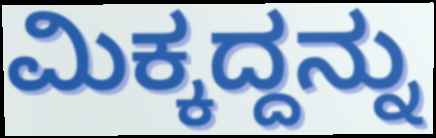
ಮಿಕ್ಕದ್ದನ್ನು